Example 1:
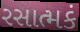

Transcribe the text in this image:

રસાત્મકં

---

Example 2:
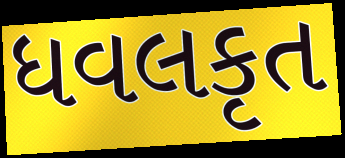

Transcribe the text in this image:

ધવલકૃત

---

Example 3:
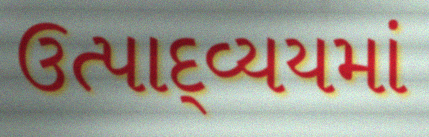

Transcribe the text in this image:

ઉત્પાદ્વ્યયમાં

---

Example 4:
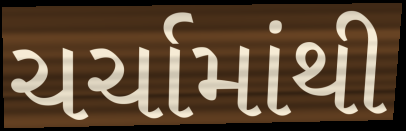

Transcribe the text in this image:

ચર્ચામાંથી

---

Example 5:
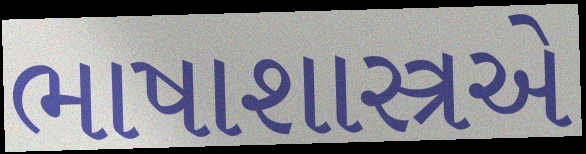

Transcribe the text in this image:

ભાષાશાસ્ત્રએ